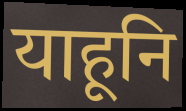
याहूनि